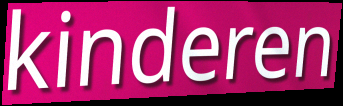
kinderen